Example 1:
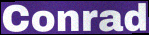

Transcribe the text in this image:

Conrad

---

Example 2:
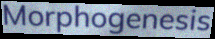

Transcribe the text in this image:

Morphogenesis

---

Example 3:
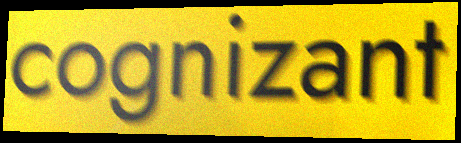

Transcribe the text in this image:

cognizant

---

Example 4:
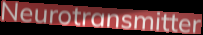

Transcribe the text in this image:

Neurotransmitter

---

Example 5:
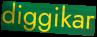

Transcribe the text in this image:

diggikar